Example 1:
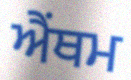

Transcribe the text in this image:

ਐਂਥਮ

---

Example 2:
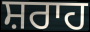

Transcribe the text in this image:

ਸ਼ਰਾਹ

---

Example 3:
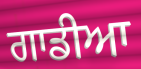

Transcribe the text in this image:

ਗਾਡੀਆ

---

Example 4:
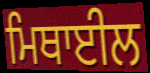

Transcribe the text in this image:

ਮਿਥਾਈਲ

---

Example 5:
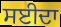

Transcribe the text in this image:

ਸਈਦਾ